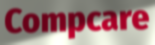
Compcare